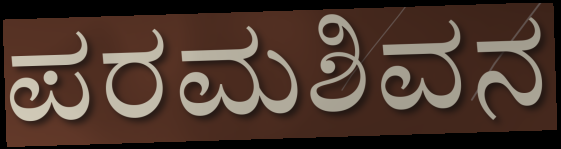
ಪರಮಶಿವನ